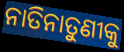
ନାତିନାତୁଣୀକୁ